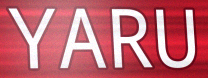
YARU